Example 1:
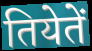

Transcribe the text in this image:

तियेतें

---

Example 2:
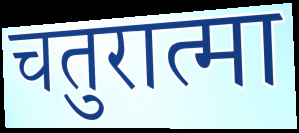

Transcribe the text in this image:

चतुरात्मा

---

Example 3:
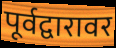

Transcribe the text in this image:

पूर्वद्वारावर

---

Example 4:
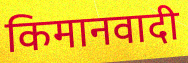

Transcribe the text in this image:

किमानवादी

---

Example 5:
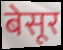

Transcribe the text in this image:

बेसूर